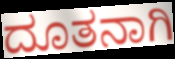
ದೂತನಾಗಿ